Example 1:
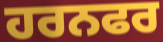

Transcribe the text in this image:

ਹਰਨਫਰ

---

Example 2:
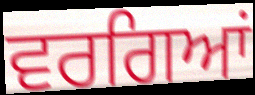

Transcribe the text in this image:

ਵਰਗਿਆਂ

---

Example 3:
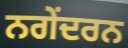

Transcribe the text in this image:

ਨਗੇਂਦਰਨ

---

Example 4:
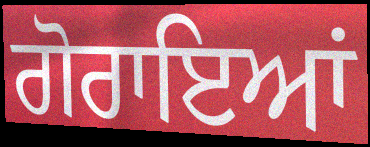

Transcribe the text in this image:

ਗੋਰਾਇਆਂ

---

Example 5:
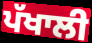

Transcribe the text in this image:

ਪੱਖਾਲੀ